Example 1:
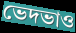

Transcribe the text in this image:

ভেদভাও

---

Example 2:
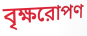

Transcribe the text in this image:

বৃক্ষরোপণ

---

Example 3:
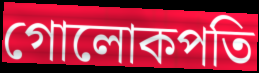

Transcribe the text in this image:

গোলোকপতি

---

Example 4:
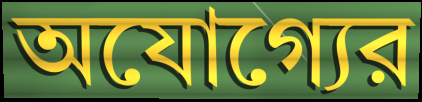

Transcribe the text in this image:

অযোগ্যের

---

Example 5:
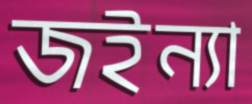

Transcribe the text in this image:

জইন্যা